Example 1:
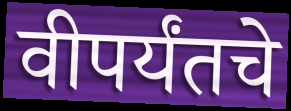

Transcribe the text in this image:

वीपर्यंतचे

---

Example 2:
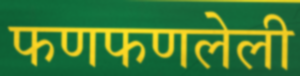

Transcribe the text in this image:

फणफणलेली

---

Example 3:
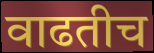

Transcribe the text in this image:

वाढतीच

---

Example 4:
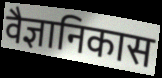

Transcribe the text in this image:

वैज्ञानिकास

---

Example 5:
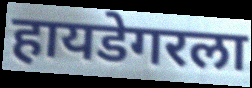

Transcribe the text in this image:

हायडेगरला